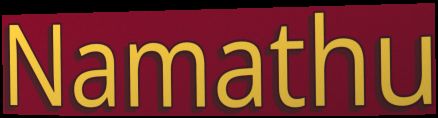
Namathu